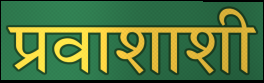
प्रवाशाशी